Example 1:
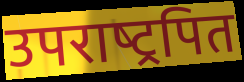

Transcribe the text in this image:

उपराष्ट्रपित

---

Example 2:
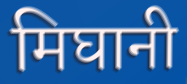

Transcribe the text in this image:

मिघानी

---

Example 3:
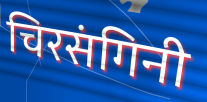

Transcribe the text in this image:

चिरसंगिनी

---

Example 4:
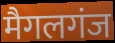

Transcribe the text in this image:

मैगलगंज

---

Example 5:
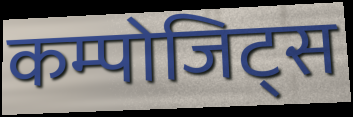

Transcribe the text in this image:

कम्पोजिट्स